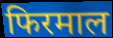
फिरमाल